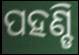
ପହଣ୍ଡି